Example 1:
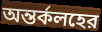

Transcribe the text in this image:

অন্তর্কলহের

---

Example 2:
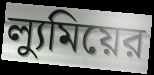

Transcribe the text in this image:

ল্যুমিয়ের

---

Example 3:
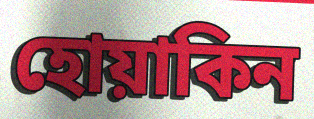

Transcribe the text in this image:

হোয়াকিন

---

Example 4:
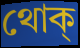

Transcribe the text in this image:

থোক্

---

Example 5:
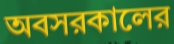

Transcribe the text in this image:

অবসরকালের